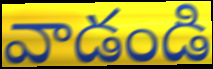
వాడండి